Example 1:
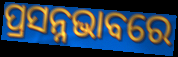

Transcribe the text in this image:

ପ୍ରସନ୍ନଭାବରେ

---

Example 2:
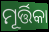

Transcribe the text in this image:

ମୂର୍ତ୍ତିକା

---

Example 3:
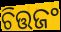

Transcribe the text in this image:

ଚିତ୍ତଜଂ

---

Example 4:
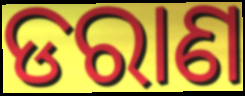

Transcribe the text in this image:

ଡରାଣ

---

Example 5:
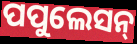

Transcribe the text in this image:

ପପୁଲେସନ୍